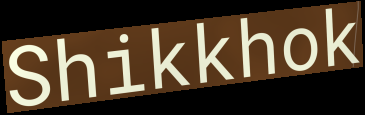
Shikkhok